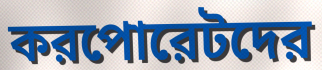
করপোরেটদের